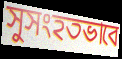
সুসংহতভাবে